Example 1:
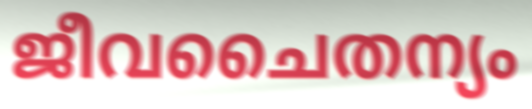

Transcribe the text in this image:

ജീവചൈതന്യം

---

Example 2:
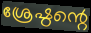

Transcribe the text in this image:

ശ്രേഷ്ഠന്റെ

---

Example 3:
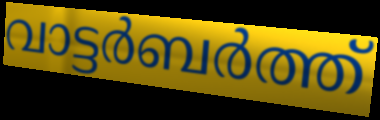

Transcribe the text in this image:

വാട്ടർബർത്ത്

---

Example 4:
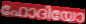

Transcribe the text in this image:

ഫോദിയോ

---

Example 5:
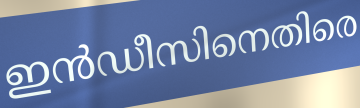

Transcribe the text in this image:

ഇൻഡീസിനെതിരെ